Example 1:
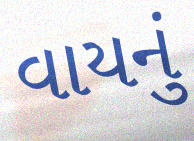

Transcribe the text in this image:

વાયનું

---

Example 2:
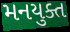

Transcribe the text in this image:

મનયુક્ત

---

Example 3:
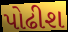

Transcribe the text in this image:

પોઢીશ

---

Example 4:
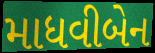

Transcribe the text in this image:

માધવીબેન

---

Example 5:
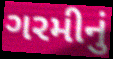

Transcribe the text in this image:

ગરમીનું